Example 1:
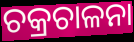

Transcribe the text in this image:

ଚକ୍ରଚାଳନା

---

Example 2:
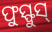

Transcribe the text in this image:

ଫୁସ୍ଫୁସ୍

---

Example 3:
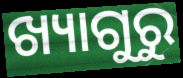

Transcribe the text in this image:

ଖ୍ୟାଗୁରୁ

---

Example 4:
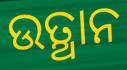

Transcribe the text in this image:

ଉତ୍ଥାନ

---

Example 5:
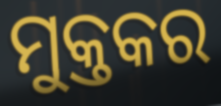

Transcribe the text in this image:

ମୁକ୍ତକର